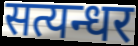
सत्यन्धर